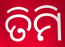
ତିମି